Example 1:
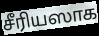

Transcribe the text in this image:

சீரியஸாக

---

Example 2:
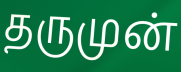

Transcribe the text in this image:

தருமுன்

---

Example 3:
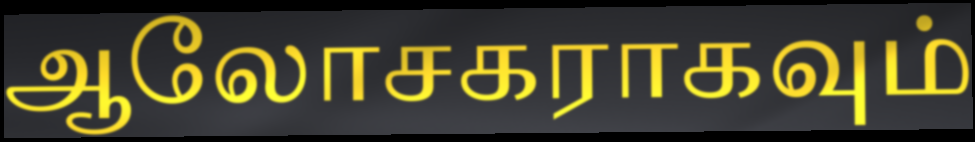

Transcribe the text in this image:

ஆலோசகராகவும்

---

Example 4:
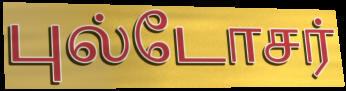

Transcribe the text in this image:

புல்டோசர்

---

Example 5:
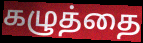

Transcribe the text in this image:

கழுத்தை